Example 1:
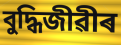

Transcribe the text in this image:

বুদ্ধিজীৱীৰ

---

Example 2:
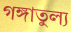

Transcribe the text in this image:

গঙ্গাতুল্য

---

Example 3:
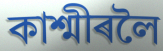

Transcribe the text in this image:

কাশ্মীৰলৈ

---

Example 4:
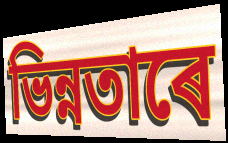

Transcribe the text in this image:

ভিন্নতাৰে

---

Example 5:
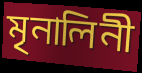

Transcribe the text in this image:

মৃনালিনী